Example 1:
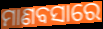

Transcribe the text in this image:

ମାଣବସାରେ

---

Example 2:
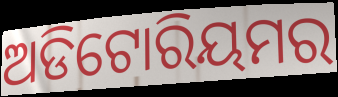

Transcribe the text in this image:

ଅଡିଟୋରିୟମର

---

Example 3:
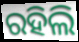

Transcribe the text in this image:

ରହିଲି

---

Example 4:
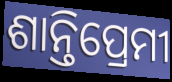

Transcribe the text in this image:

ଶାନ୍ତିପ୍ରେମୀ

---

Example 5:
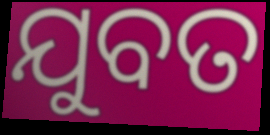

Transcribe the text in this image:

ଯୁବତ